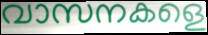
വാസനകളെ